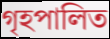
গৃহপালিত